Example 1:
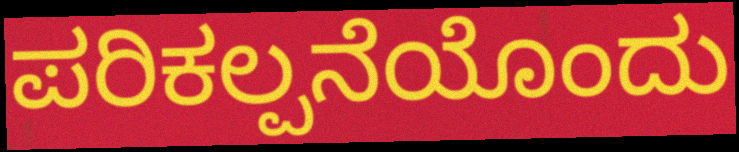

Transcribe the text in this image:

ಪರಿಕಲ್ಪನೆಯೊಂದು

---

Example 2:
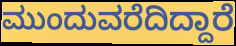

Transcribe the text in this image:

ಮುಂದುವರೆದಿದ್ದಾರೆ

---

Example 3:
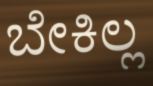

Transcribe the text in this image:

ಬೇಕಿಲ್ಲ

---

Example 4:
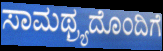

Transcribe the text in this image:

ಸಾಮಥ್ರ್ಯದೊಂದಿಗೆ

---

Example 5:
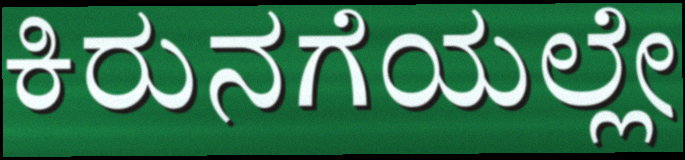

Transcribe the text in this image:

ಕಿರುನಗೆಯಲ್ಲೇ